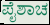
ಪೈಶಾಚ